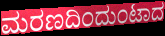
ಮರಣದಿಂದುಂಟಾದ